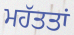
ਮਹੱਤਤਾਂ